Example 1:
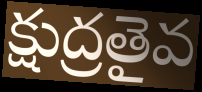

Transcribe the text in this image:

క్షుద్రతైవ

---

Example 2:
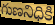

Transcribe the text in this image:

గుణనిధికి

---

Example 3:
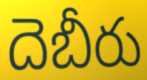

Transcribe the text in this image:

దెబీరు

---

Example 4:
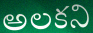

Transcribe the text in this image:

అలకని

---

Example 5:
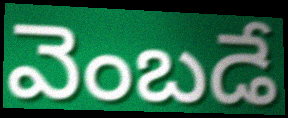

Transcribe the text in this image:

వెంబడే